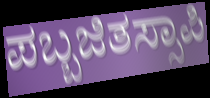
ಪಬ್ಬಜಿತಸ್ಸಾಪಿ